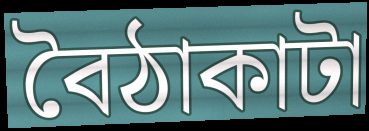
বৈঠাকাটা